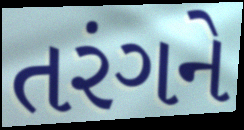
તરંગને